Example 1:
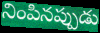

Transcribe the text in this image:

నింపినప్పుడు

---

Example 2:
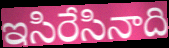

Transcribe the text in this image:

ఇసిరేసినాది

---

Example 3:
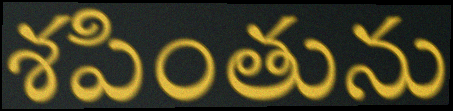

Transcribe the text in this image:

శపింతును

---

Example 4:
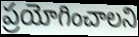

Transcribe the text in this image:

ప్రయోగించాలని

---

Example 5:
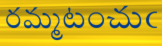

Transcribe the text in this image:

రమ్మటంచుఁ